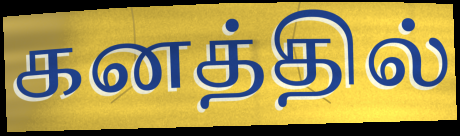
கனத்தில்